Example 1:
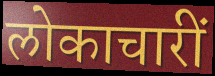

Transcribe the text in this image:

लोकाचारीं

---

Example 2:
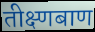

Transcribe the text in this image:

तीक्ष्णबाण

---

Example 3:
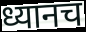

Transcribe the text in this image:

ध्यानच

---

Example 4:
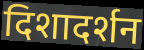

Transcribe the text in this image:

दिशादर्शन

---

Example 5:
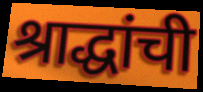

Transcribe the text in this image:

श्राद्धांची